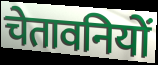
चेतावनियों